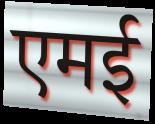
एमई